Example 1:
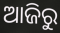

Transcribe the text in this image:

ଆଜିରୁ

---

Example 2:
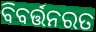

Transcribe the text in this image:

ବିବର୍ତ୍ତନରତ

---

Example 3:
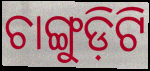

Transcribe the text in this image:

ଚାଙ୍ଗୁଡ଼ିଟି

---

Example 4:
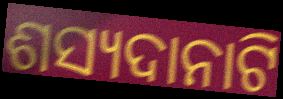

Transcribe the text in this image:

ଶସ୍ୟଦାନାଟି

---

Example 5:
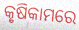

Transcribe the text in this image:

କୃଷିକାମରେ